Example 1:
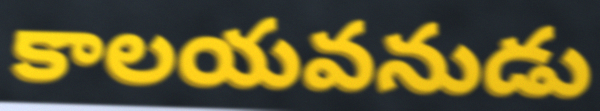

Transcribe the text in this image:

కాలయవనుడు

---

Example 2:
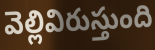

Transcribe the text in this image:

వెల్లివిరుస్తుంది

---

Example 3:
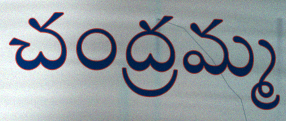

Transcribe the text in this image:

చంద్రమ్మ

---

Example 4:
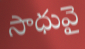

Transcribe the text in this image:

సాధువై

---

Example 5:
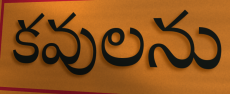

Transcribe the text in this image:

కవులను